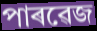
পাৰৱেজ